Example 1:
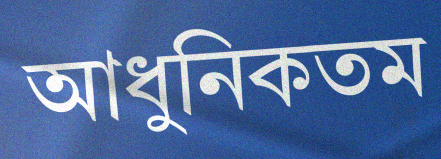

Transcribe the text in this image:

আধুনিকতম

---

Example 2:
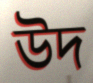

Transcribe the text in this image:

উদ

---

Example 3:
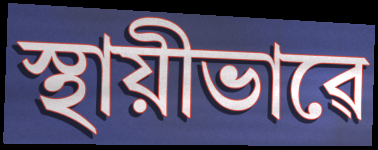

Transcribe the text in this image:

স্থায়ীভাৱে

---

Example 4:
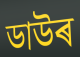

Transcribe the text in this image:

ডাউৰ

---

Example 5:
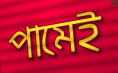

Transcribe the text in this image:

পামেই